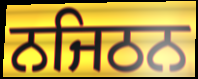
ਨਜਿਠਨ